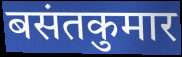
बसंतकुमार